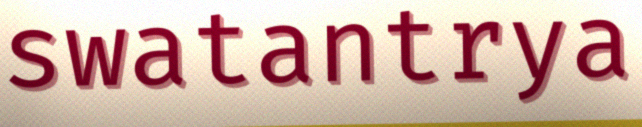
swatantrya